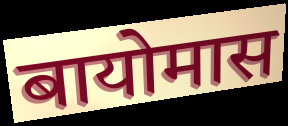
बायोमास